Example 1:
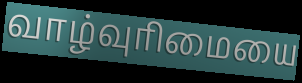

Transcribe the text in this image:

வாழ்வுரிமையை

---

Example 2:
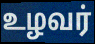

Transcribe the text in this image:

உழவர்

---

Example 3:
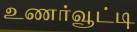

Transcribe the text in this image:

உணர்வூட்டி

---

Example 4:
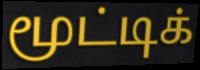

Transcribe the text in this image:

மூட்டிக்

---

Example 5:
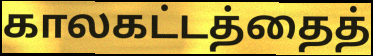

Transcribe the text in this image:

காலகட்டத்தைத்